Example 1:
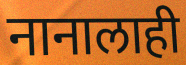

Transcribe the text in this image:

नानालाही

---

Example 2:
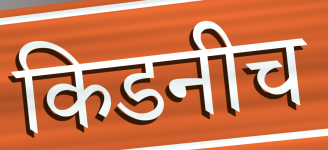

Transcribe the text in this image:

किडनीच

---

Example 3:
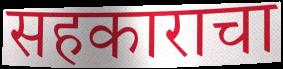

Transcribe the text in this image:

सहकाराचा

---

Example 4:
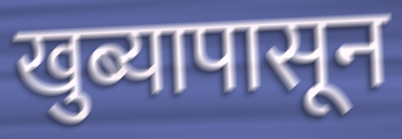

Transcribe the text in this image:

खुब्यापासून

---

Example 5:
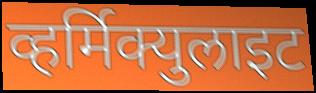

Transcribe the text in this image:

व्हर्मिक्युलाइट